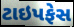
ટાઇપફેસ